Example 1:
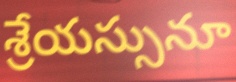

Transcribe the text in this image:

శ్రేయస్సునూ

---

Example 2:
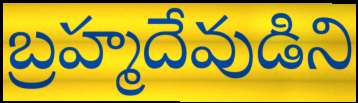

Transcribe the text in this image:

బ్రహ్మదేవుడిని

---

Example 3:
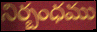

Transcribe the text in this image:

నిర్బంధము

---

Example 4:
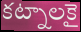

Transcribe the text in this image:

కట్నాలకై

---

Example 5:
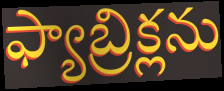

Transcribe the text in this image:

ఫ్యాబ్రిక్లను